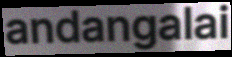
andangalai